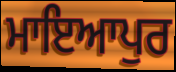
ਮਾਇਆਪੁਰ